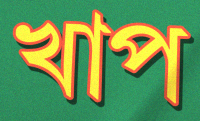
খাপ